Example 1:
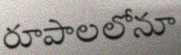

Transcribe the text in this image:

రూపాలలోనూ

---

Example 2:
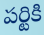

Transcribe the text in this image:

పర్టికి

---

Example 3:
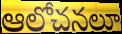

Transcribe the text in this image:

ఆలోచనలూ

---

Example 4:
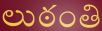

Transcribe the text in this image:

లుఠంతి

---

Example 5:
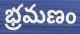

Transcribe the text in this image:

భ్రమణం